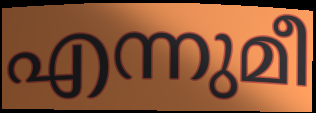
എന്നുമീ